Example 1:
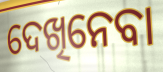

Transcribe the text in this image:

ଦେଖିନେବା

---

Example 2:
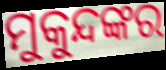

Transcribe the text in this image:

ମୁକୁନ୍ଦଙ୍କର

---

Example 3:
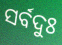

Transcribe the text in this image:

ସର୍ବଦୁଃ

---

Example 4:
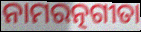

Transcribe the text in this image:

ନାମରତ୍ନଗୀତା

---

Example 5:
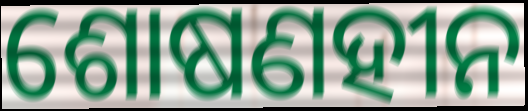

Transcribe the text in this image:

ଶୋଷଣହୀନ